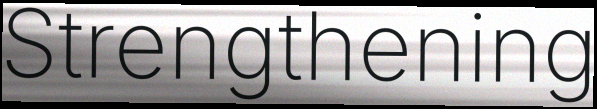
Strengthening